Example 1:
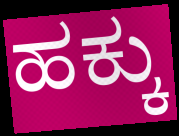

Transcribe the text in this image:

ಹಕ್ಕು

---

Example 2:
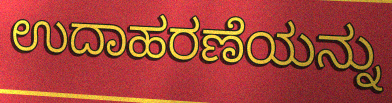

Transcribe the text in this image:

ಉದಾಹರಣೆಯನ್ನು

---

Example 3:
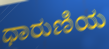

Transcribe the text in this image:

ಧಾರುಣಿಯ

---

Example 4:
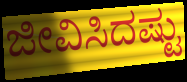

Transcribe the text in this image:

ಜೀವಿಸಿದಷ್ಟು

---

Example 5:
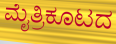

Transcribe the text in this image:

ಮೈತ್ರಿಕೂಟದ